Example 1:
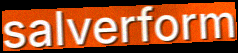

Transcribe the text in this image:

salverform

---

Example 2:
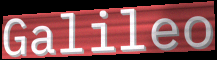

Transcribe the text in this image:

Galileo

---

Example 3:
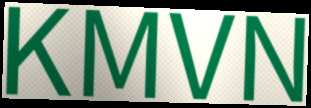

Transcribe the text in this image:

KMVN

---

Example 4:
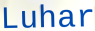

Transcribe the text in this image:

Luhar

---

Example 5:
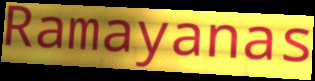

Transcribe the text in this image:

Ramayanas